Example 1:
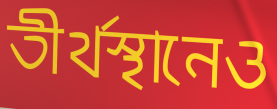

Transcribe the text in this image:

তীর্থস্থানেও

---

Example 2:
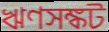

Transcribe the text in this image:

ঋণসঙ্কট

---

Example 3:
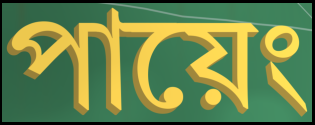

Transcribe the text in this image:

পায়েং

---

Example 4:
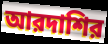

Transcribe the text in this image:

আরদাশির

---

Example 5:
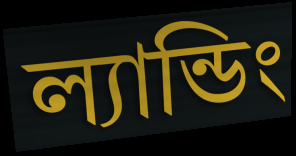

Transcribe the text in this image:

ল্যান্ডিং